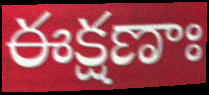
ఈక్షణాః